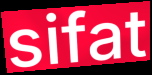
sifat